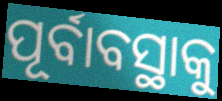
ପୂର୍ବାବସ୍ଥାକୁ